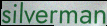
silverman